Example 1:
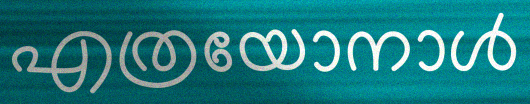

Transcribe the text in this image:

എത്രയോനാൾ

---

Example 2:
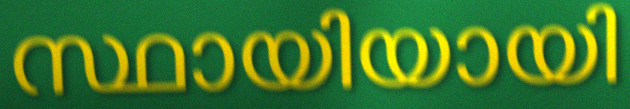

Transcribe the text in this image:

സ്ഥായിയായി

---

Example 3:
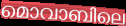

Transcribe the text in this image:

മൊവാബിലെ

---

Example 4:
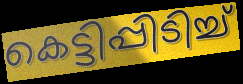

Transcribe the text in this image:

കെട്ടിപ്പിടിച്ച്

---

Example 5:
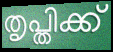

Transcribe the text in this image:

തൃപ്തിക്ക്